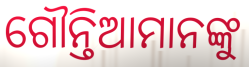
ଗୌନ୍ତିଆମାନଙ୍କୁ